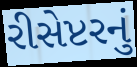
રીસેપ્ટરનું